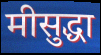
मीसुद्धा